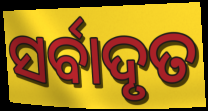
ସର୍ବାଦୃତ